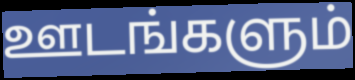
ஊடங்களும்